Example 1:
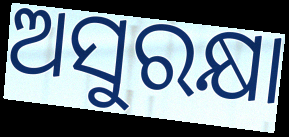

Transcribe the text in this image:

ଅସୁରକ୍ଷା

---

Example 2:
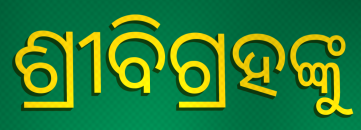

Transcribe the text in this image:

ଶ୍ରୀବିଗ୍ରହଙ୍କୁ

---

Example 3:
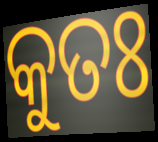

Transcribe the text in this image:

କୁତଃ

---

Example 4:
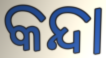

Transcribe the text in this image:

କନ୍ଦା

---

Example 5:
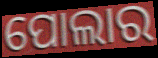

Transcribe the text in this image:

ପୋଲାର